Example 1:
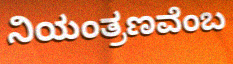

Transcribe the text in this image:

ನಿಯಂತ್ರಣವೆಂಬ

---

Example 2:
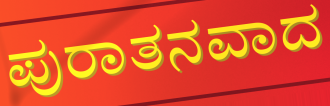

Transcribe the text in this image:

ಪುರಾತನವಾದ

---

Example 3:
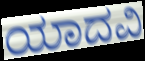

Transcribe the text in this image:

ಯಾದವಿ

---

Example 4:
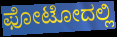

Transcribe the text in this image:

ಫೋಟೋದಲ್ಲಿ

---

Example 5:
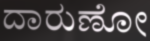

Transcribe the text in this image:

ದಾರುಣೋ